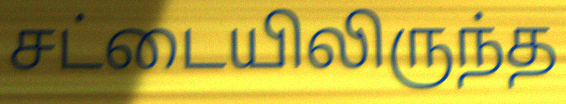
சட்டையிலிருந்த